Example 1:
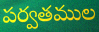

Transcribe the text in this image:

పర్వతముల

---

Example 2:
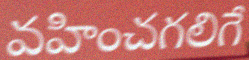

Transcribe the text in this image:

వహించగలిగే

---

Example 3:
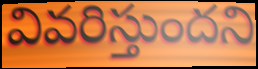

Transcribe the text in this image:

వివరిస్తుందని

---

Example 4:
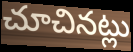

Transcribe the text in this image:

చూచినట్లు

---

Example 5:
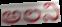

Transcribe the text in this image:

అలని